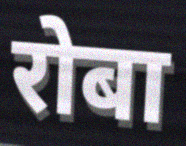
रोबा